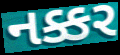
નક્કર